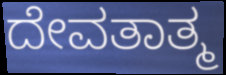
ದೇವತಾತ್ಮ